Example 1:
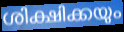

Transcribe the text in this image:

ശിക്ഷിക്കയും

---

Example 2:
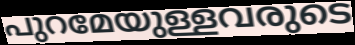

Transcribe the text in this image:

പുറമേയുള്ളവരുടെ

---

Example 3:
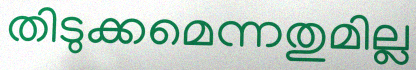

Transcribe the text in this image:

തിടുക്കമെന്നതുമില്ല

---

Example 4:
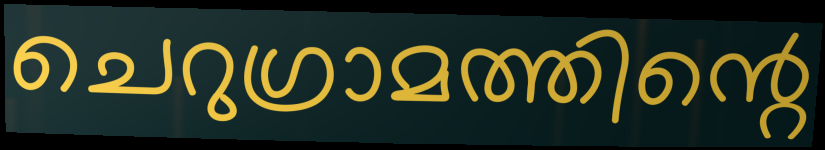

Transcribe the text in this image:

ചെറുഗ്രാമത്തിന്റെ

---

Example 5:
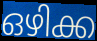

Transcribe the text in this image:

ഒഴിക്ക